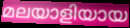
മലയാളിയായ